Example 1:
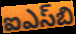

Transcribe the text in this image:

ఐఎస్‌బి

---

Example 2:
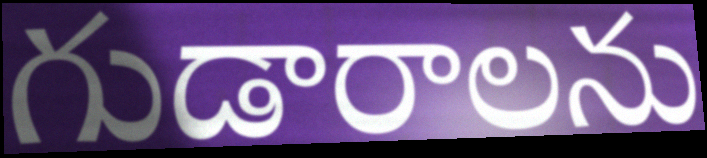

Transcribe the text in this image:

గుడారాలను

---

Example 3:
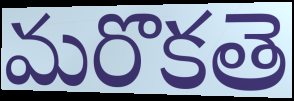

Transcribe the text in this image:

మరొకతె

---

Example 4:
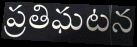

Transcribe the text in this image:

ప్రతిఘటన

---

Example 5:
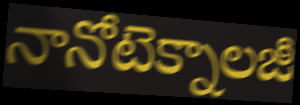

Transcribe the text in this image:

నానోటెక్నాలజీ